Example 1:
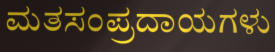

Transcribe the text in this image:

ಮತಸಂಪ್ರದಾಯಗಳು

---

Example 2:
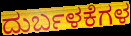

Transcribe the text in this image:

ದುರ್ಬಳಕೆಗಳ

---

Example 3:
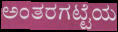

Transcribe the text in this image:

ಅಂತರಗಟ್ಟೆಯ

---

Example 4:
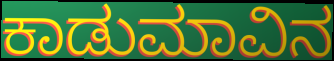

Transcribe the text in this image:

ಕಾಡುಮಾವಿನ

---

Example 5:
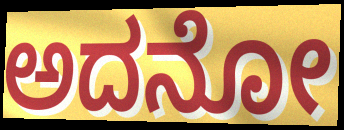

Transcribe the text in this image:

ಅದನೋ